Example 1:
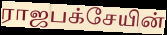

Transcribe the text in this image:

ராஜபக்சேயின்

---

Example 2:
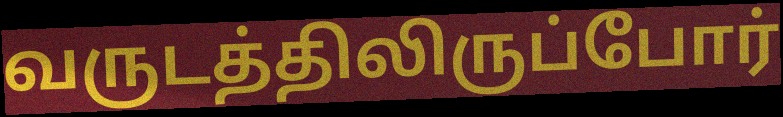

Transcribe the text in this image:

வருடத்திலிருப்போர்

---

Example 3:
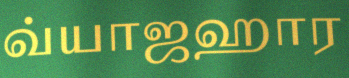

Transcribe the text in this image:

வ்யாஜஹார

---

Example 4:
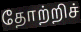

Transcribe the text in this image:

தோற்றிச்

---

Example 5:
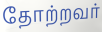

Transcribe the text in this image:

தோற்றவர்